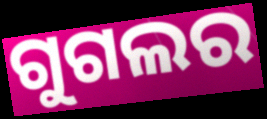
ଗୁଗଲର